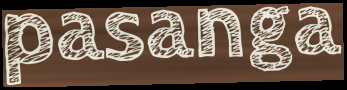
pasanga